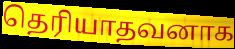
தெரியாதவனாக